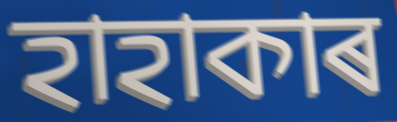
হাহাকাৰ